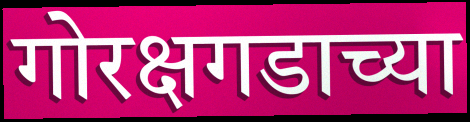
गोरक्षगडाच्या